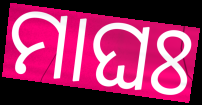
ମାଘଃ